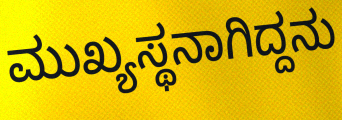
ಮುಖ್ಯಸ್ಥನಾಗಿದ್ದನು